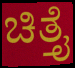
ಚಿತ್ತೈ